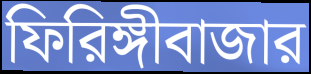
ফিরিঙ্গীবাজার